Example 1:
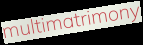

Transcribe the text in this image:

multimatrimony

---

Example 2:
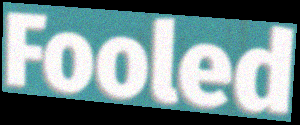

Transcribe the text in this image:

Fooled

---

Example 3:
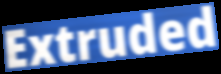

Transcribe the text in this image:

Extruded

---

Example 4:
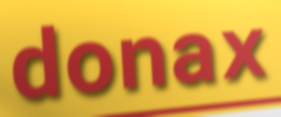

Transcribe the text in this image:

donax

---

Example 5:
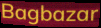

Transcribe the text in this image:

Bagbazar